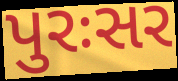
પુરઃસર